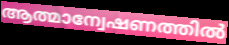
ആത്മാന്വേഷണത്തിൽ